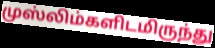
முஸ்லிம்களிடமிருந்து